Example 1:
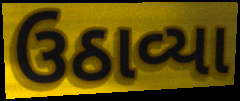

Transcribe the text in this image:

ઉઠાવ્યા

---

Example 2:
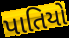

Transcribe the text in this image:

પાતિયો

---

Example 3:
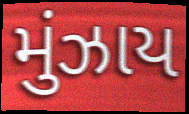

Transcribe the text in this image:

મુંઝાય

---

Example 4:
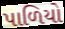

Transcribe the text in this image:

પાળિયો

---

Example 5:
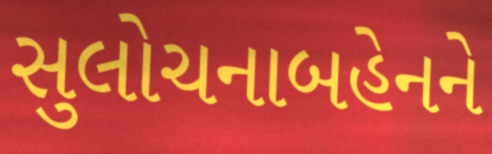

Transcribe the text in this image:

સુલોચનાબહેનને